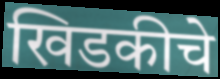
खिडकीचे